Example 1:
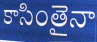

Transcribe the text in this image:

కాసింతైనా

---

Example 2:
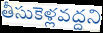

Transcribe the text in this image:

తీసుకెళ్లవద్దని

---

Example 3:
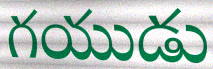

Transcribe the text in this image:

గయుడు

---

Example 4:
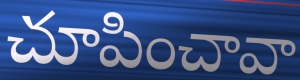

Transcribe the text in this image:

చూపించావా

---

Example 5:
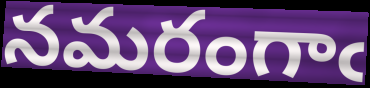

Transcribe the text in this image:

నమరంగాఁ